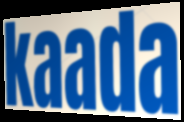
kaada